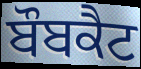
ਬੌਬਕੈਟ